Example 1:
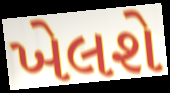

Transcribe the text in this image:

ખેલશે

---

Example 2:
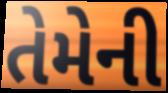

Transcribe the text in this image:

તેમેની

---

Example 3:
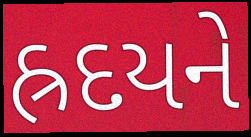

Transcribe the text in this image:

હ્રદયને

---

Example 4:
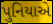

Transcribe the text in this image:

પુનિયાએ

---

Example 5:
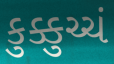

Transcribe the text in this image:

કુક્કુચ્ચં